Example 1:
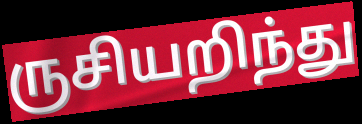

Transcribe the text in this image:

ருசியறிந்து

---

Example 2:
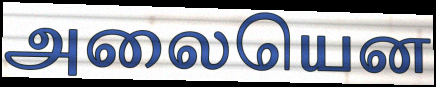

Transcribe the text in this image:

அலையென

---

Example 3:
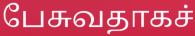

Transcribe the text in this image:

பேசுவதாகச்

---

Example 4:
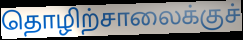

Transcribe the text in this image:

தொழிற்சாலைக்குச்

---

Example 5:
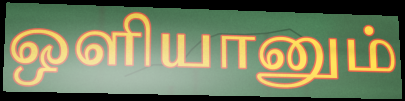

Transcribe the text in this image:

ஒளியானும்